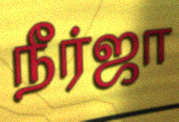
நீர்ஜா